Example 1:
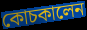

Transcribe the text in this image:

কোচকালেন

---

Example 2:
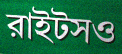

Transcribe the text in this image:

রাইটসও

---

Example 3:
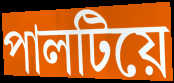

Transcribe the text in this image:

পালটিয়ে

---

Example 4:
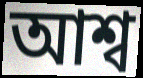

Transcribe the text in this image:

আশ্ব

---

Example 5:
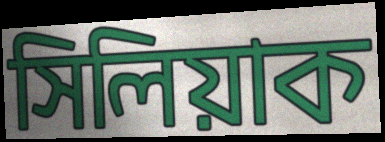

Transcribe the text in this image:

সিলিয়াক